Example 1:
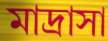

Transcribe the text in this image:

মাদ্রাসা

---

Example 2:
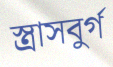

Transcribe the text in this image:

স্ত্রাসবুর্গ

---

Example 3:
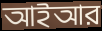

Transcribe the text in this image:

আইআর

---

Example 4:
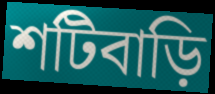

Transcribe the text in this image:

শটিবাড়ি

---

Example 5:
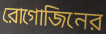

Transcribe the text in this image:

রোগোজিনের